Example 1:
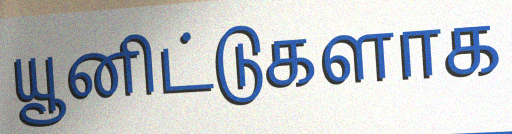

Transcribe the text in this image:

யூனிட்டுகளாக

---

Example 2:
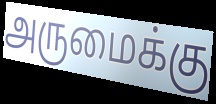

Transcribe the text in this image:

அருமைக்கு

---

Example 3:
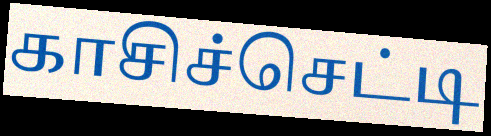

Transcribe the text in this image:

காசிச்செட்டி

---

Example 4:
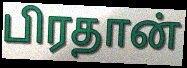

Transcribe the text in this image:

பிரதான்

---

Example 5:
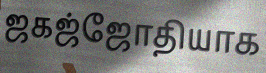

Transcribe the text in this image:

ஜகஜ்ஜோதியாக